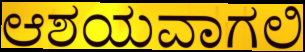
ಆಶಯವಾಗಲಿ